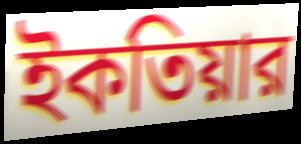
ইকতিয়ার